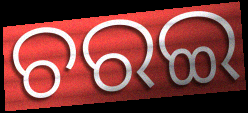
ଚରଇ